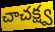
చాచక్ష్వ